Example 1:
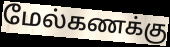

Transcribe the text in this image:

மேல்கணக்கு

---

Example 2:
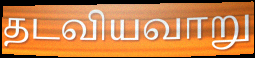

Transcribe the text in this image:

தடவியவாறு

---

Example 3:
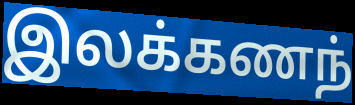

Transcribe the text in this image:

இலக்கணந்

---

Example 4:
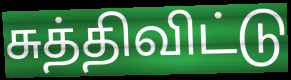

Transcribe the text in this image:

சுத்திவிட்டு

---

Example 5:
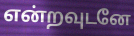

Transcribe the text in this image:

என்றவுடனே